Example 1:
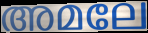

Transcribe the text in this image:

അമലേ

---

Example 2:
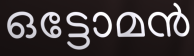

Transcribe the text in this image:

ഒട്ടോമൻ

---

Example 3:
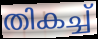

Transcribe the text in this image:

തികച്ച്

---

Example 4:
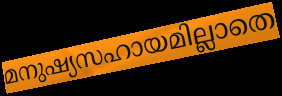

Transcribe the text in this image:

മനുഷ്യസഹായമില്ലാതെ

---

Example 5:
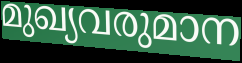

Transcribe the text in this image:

മുഖ്യവരുമാന